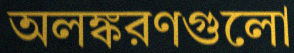
অলঙ্করণগুলো